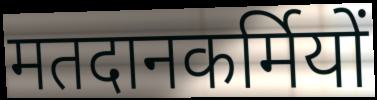
मतदानकर्मियों